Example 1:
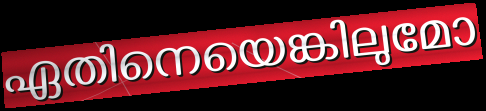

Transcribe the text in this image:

ഏതിനെയെങ്കിലുമോ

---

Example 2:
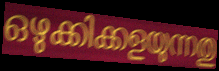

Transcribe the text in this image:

ഒഴുക്കിക്കളയുന്നതു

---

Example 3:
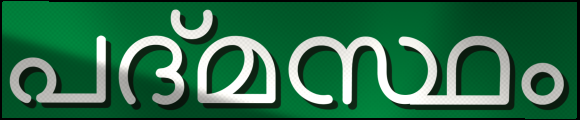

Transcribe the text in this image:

പദ്മസ്ഥം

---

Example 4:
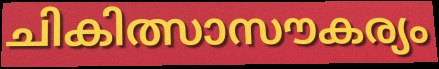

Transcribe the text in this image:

ചികിത്സാസൗകര്യം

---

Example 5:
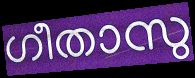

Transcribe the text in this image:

ഗീതാസു